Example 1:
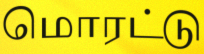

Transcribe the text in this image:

மொரட்டு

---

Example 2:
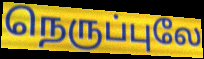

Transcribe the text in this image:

நெருப்புலே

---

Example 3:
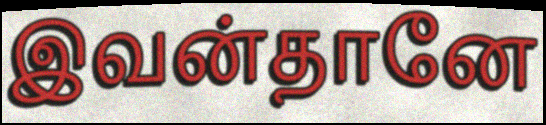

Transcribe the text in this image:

இவன்தானே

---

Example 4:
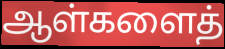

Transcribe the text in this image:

ஆள்களைத்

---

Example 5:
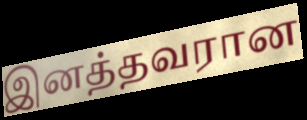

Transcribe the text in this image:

இனத்தவரான